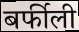
बर्फीली